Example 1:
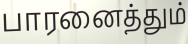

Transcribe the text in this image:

பாரனைத்தும்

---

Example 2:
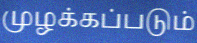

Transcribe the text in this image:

முழக்கப்படும்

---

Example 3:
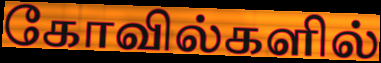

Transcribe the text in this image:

கோவில்களில்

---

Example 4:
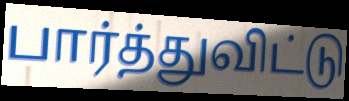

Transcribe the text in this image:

பார்த்துவிட்டு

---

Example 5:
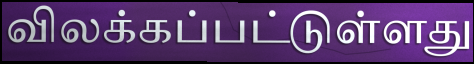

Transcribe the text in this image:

விலக்கப்பட்டுள்ளது